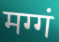
मग्गं